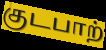
குடபாற்